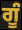
ਗੂੰ